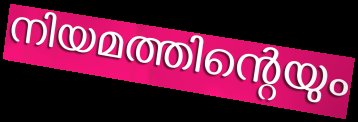
നിയമത്തിന്റെയും